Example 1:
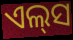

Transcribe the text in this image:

ଏଲ୍‌ସ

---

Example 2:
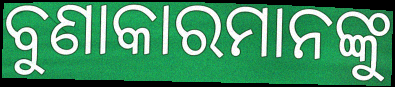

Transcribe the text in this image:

ବୁଣାକାରମାନଙ୍କୁ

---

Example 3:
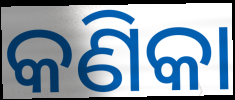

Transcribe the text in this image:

କଣିକା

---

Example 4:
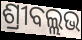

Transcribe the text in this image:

ଶ୍ରୀବଲ୍ଲଭ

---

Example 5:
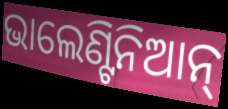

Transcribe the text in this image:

ଭାଲେଣ୍ଟିନିଆନ୍